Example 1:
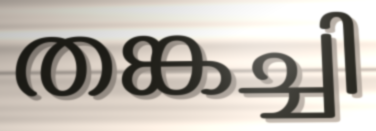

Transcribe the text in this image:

തങ്കച്ചി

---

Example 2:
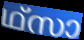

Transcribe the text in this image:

ഥ്സാ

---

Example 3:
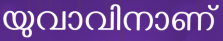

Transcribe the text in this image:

യുവാവിനാണ്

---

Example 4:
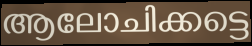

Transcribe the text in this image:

ആലോചിക്കട്ടെ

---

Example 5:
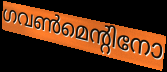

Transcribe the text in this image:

ഗവൺമെന്റിനോ